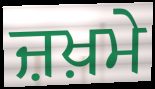
ਜ਼ਖ਼ਮੇ